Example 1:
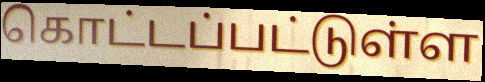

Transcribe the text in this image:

கொட்டப்பட்டுள்ள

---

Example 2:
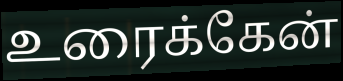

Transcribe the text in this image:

உரைக்கேன்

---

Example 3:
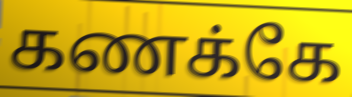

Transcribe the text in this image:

கணக்கே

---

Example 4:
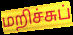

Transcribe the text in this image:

மறிச்சுப்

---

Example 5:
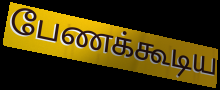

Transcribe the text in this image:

பேணக்கூடிய